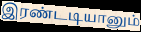
இரண்டடியானும்